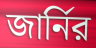
জার্নির